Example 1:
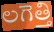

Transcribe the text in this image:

లగెత్తి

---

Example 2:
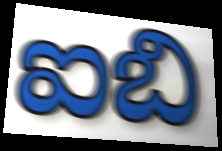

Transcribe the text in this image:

ఐబి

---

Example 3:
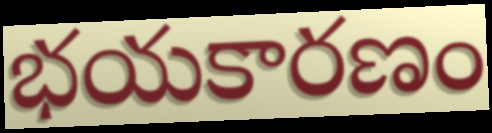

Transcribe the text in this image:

భయకారణం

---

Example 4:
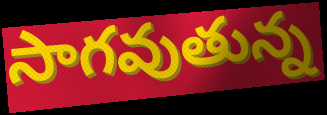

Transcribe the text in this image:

సాగవుతున్న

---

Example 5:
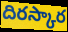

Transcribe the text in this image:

దిరస్కార